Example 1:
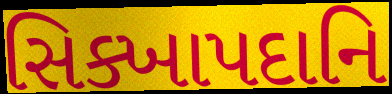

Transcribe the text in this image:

સિક્ખાપદાનિ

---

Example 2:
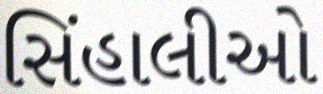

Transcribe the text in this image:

સિંહાલીઓ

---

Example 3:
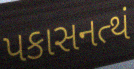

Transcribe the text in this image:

પકાસનત્થં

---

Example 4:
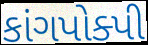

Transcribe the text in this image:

કાંગપોક્પી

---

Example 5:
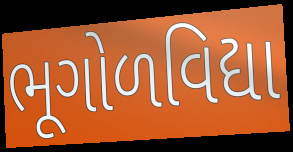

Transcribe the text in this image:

ભૂગોળવિદ્યા